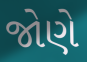
જોણે